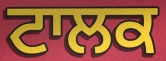
ਟਾਲਕ